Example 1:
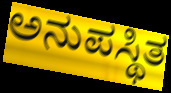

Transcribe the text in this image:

ಅನುಪಸ್ಥಿತ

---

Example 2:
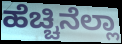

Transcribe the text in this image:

ಹೆಚ್ಚಿನೆಲ್ಲಾ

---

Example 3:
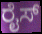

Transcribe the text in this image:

ರೈಸ್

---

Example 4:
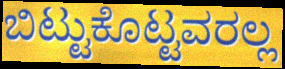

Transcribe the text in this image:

ಬಿಟ್ಟುಕೊಟ್ಟವರಲ್ಲ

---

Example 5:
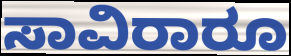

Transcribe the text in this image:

ಸಾವಿರಾರೂ